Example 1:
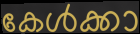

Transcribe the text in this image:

കേൾക്കാ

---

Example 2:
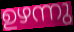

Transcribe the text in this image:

ഉഴന്നു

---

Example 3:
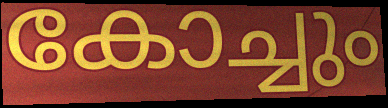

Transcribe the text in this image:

കോച്ചും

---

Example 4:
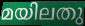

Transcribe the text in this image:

മയിലതു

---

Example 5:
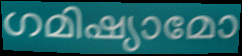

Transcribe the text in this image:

ഗമിഷ്യാമോ